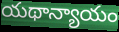
యథాన్యాయం